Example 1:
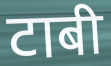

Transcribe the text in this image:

टाबी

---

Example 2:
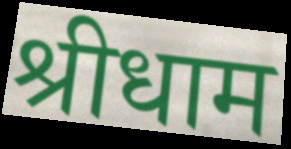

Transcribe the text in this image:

श्रीधाम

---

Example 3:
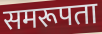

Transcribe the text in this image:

समरूपता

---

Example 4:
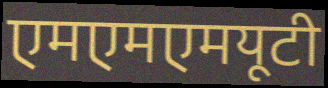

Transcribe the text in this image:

एमएमएमयूटी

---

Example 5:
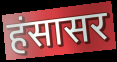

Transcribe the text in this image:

हंसासर